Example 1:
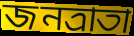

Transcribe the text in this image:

জনত্রাতা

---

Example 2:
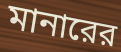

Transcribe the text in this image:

মানারের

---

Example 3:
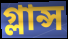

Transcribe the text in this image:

গ্লান্স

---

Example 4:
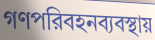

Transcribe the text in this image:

গণপরিবহনব্যবস্থায়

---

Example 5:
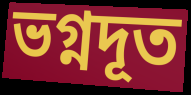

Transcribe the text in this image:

ভগ্নদূত